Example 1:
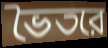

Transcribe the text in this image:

ভৈতরে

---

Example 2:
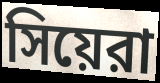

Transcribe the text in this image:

সিয়েরা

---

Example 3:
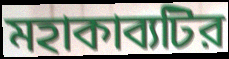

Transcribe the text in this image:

মহাকাব্যটির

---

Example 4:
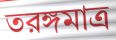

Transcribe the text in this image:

তরঙ্গমাত্র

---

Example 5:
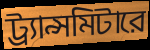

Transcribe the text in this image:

ট্র্যান্সমিটারে